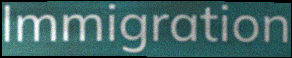
Immigration